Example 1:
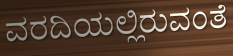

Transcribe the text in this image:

ವರದಿಯಲ್ಲಿರುವಂತೆ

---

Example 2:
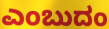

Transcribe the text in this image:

ಎಂಬುದಂ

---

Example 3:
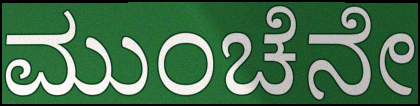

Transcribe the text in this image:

ಮುಂಚೆನೇ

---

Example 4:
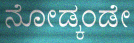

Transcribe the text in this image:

ನೋಡ್ಕಂಡೇ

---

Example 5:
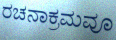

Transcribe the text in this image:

ರಚನಾಕ್ರಮವೂ